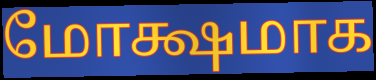
மோக்ஷமாக